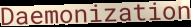
Daemonization